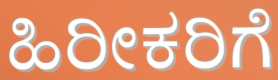
ಹಿರೀಕರಿಗೆ